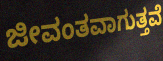
ಜೀವಂತವಾಗುತ್ತವೆ